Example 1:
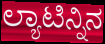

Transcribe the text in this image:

ಲ್ಯಾಟಿನ್ನಿನ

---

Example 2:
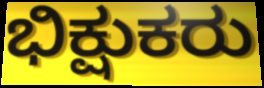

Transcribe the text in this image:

ಭಿಕ್ಷುಕರು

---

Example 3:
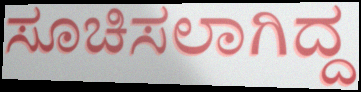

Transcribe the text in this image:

ಸೂಚಿಸಲಾಗಿದ್ದ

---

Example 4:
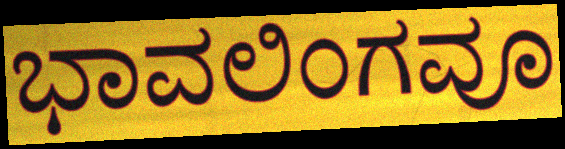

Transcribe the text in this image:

ಭಾವಲಿಂಗವೂ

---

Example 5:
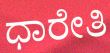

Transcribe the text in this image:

ಧಾರೇತಿ